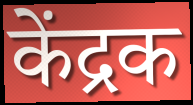
केंद्रक